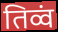
तिव्वं